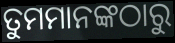
ତୁମମାନଙ୍କଠାରୁ